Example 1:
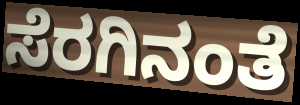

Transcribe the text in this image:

ಸೆರಗಿನಂತೆ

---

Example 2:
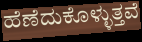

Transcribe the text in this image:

ಹೆಣೆದುಕೊಳ್ಳುತ್ತವೆ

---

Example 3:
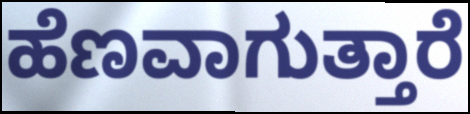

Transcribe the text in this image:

ಹೆಣವಾಗುತ್ತಾರೆ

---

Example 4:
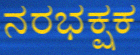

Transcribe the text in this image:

ನರಭಕ್ಷಕ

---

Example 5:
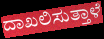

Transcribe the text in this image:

ದಾಖಲಿಸುತ್ತಾಳೆ